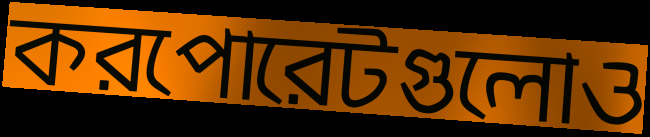
করপোরেটগুলোও